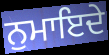
ਨੁਮਾਇਦੇ